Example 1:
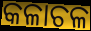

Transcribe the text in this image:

କଳାଚଳ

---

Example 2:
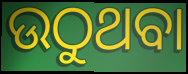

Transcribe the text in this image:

ଉଠୁଥବା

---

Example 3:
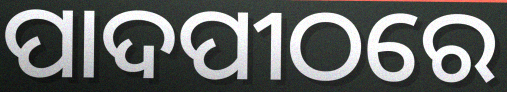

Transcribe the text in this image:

ପାଦପୀଠରେ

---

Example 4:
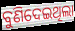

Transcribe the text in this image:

ବୁଣିଦେଇଥିଲା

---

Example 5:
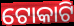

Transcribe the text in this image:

ଟୋକାଟି